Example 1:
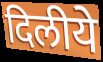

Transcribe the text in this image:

दिलीये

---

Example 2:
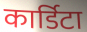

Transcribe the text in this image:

कार्डिटा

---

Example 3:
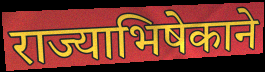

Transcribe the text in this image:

राज्याभिषेकाने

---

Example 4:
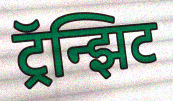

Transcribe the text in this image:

ट्रॅन्झिट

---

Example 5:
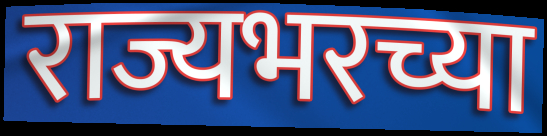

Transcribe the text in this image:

राज्यभरच्या